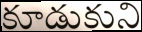
కూడుకుని